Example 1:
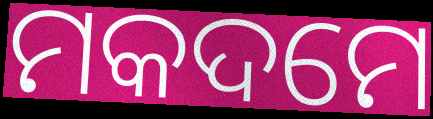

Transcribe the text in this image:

ମକଦମେ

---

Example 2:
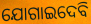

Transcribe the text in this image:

ଯୋଗାଇଦେବି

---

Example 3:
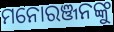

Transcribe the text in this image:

ମନୋରଞ୍ଜନଙ୍କୁ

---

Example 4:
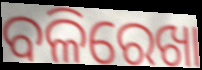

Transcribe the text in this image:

ବଳିରେଖା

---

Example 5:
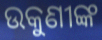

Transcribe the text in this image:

ଉକୁଣୀଙ୍କ